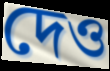
দেও